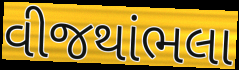
વીજથાંભલા